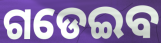
ଗଡେଇବ